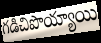
గడిచిపొయ్యాయి